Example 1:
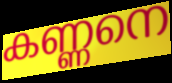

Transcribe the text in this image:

കണ്ണനെ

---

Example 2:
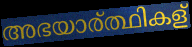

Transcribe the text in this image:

അഭയാര്ത്ഥികള്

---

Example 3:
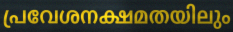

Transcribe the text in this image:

പ്രവേശനക്ഷമതയിലും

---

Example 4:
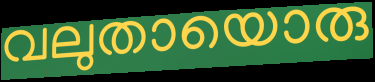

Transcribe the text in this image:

വലുതായൊരു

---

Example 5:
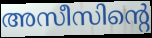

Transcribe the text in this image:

അസീസിന്റെ